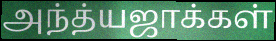
அந்த்யஜாக்கள்